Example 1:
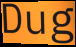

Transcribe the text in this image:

Dug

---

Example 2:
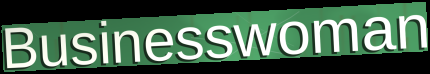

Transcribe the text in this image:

Businesswoman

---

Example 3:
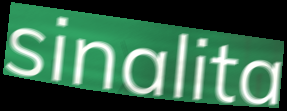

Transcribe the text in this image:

sinalita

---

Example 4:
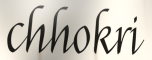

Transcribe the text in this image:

chhokri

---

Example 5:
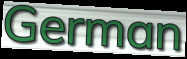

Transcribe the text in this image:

German